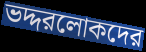
ভদ্দরলোকদের